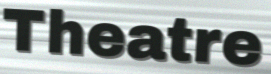
Theatre